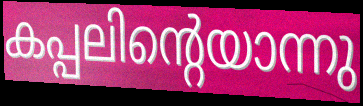
കപ്പലിന്റെയാന്നു